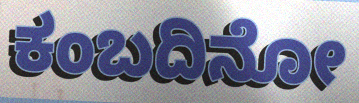
ಕಂಬದಿನೋ